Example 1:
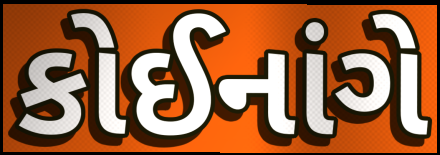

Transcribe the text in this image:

કોઈનાંગે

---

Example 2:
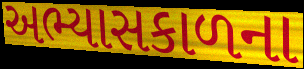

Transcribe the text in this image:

અભ્યાસકાળના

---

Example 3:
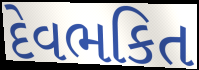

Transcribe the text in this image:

દેવભકિત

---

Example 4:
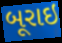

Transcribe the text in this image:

બૂરાઇ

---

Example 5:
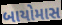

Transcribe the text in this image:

બાયોમાસ